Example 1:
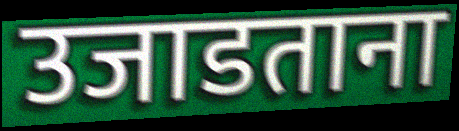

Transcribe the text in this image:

उजाडताना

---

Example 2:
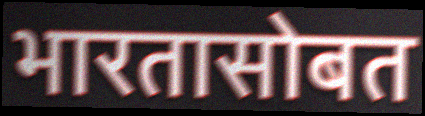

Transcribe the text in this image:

भारतासोबत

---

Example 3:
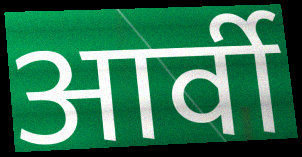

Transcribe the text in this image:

आर्वी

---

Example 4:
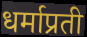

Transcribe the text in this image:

धर्माप्रती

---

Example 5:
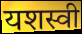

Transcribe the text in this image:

यशस्वी